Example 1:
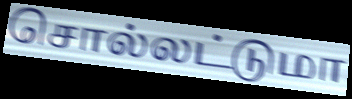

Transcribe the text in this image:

சொல்லட்டுமா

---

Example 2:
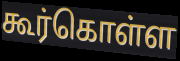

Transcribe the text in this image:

கூர்கொள்ள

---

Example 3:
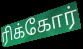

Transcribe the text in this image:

ரிக்கோர்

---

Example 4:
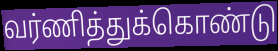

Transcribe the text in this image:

வர்ணித்துக்கொண்டு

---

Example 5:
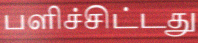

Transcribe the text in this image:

பளிச்சிட்டது